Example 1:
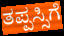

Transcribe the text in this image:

ತಪ್ಪಸ್ಸಿಗೆ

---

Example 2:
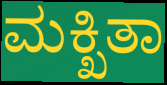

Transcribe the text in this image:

ಮಕ್ಖಿತಾ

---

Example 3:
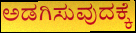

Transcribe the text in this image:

ಅಡಗಿಸುವುದಕ್ಕೆ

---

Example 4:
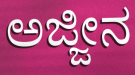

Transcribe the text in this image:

ಅಜ್ಜೀನ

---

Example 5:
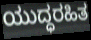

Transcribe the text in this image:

ಯುದ್ಧರಹಿತ